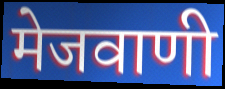
मेजवाणी